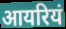
आयरियं